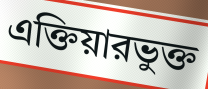
এক্তিয়ারভুক্ত